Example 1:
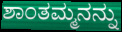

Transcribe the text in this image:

ಶಾಂತಮ್ಮನನ್ನು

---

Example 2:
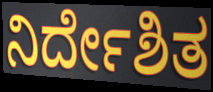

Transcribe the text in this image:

ನಿರ್ದೇಶಿತ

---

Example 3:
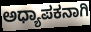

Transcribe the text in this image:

ಅಧ್ಯಾಪಕನಾಗಿ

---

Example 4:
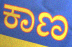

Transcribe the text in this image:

ಕಾಣ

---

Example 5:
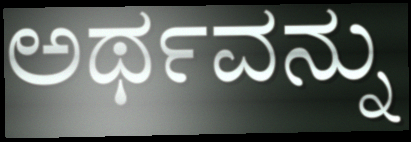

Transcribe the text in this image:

ಅರ್ಥವನ್ನು